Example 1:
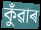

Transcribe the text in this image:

কুঁৱাৰ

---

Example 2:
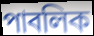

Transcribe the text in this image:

পাবলিক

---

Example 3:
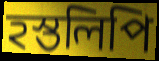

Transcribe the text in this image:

হস্তলিপি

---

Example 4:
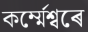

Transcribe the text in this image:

কৰ্ম্মেশ্বৰে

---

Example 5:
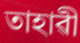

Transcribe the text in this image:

তাহাৱী